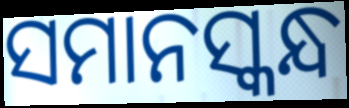
ସମାନସ୍କନ୍ଧ